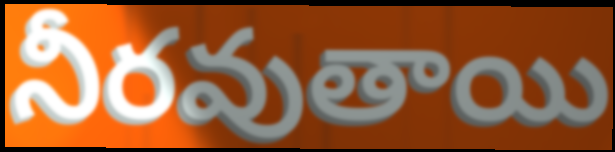
నీరవుతాయి